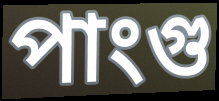
পাংগু